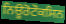
ਨਿਊਰੋਟੌਕਸਿਨ